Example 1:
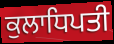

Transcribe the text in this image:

ਕੁਲਾਧਿਪਤੀ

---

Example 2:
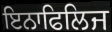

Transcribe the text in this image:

ਇਨਾਫਿਲਿਜ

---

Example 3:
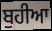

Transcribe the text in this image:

ਬੁਹੀਆ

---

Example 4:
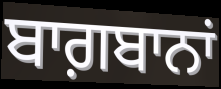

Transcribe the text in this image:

ਬਾਗ਼ਬਾਨਾਂ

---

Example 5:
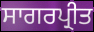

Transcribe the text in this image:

ਸਾਗਰਪ੍ਰੀਤ